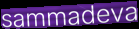
sammadeva